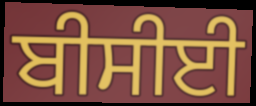
ਬੀਸੀਈ